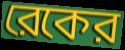
রেকের